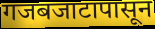
गजबजाटापासून